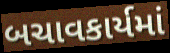
બચાવકાર્યમાં